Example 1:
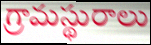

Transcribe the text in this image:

గ్రామస్థురాలు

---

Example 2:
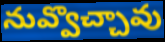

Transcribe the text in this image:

నువ్వొచ్చావు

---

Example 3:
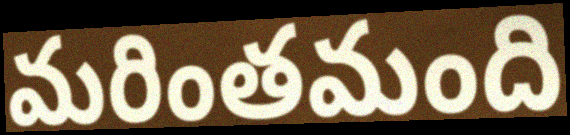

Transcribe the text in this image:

మరింతమంది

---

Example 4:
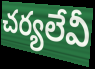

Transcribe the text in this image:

చర్యలేవీ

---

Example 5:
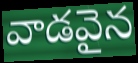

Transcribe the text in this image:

వాడవైన